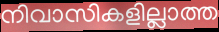
നിവാസികളില്ലാത്ത